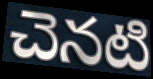
చెనటి